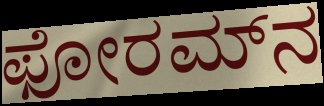
ಫೋರಮ್‌ನ